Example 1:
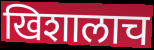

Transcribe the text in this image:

खिशालाच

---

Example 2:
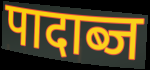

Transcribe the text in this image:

पादाब्ज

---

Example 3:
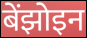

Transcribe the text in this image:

बेंझोइन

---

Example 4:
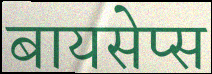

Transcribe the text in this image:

बायसेप्स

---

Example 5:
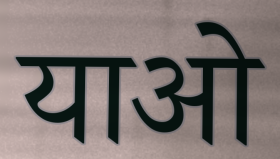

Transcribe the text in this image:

याओ